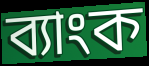
ব্যাংক